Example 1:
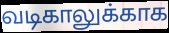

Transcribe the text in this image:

வடிகாலுக்காக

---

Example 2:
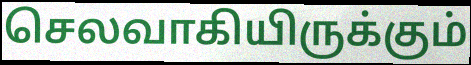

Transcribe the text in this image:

செலவாகியிருக்கும்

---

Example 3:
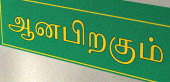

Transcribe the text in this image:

ஆனபிறகும்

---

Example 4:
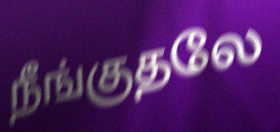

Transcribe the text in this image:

நீங்குதலே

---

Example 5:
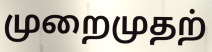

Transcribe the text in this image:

முறைமுதற்